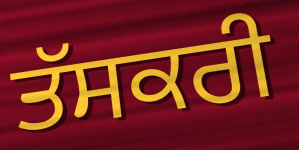
ਤੱਸਕਰੀ